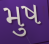
મુષ